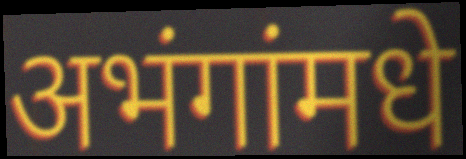
अभंगांमधे